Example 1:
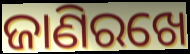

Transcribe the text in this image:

ଜାଣିରଖେ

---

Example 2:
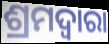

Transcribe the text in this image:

ଶ୍ରମଦ୍ଵାରା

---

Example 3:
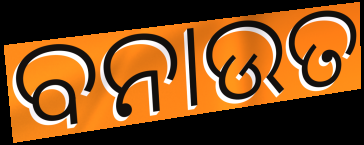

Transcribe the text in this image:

ବନାଉତ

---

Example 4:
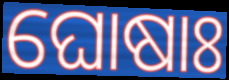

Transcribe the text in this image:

ଘୋଷାଃ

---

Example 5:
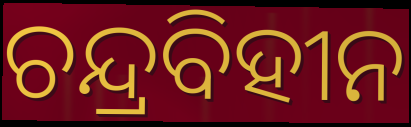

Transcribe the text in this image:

ଚନ୍ଦ୍ରବିହୀନ